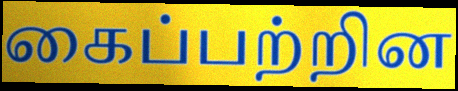
கைப்பற்றின